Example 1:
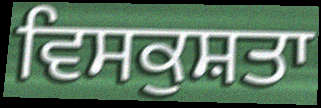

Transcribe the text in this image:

ਵਿਸਕੁਸ਼ਤਾ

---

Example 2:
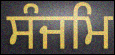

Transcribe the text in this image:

ਸੰਜਮਿ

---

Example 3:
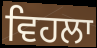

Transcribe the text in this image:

ਵਿਹਲਾ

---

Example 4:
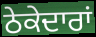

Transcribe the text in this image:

ਠੇਕੇਦਾਰਾਂ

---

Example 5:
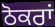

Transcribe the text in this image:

ਠੋਕਰਾਂ